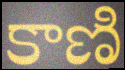
కాణి